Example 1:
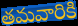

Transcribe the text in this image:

తమవారికి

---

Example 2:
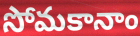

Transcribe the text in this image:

సోమకానాం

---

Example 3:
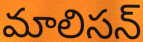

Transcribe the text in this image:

మాలిసన్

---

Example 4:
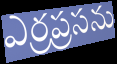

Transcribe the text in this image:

ఎర్రప్రసను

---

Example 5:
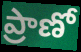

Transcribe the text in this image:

ప్రాణో